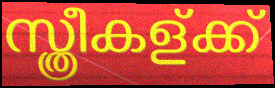
സ്ത്രീകള്ക്ക്